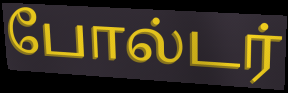
போல்டர்